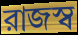
রাজস্ব